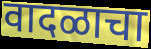
वादळाचा